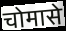
चोमासे